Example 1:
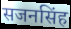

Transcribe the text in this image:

सजनसिंह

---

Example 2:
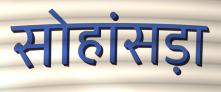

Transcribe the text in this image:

सोहांसड़ा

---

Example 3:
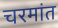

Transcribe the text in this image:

चरमांत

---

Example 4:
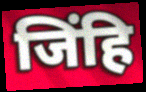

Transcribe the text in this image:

जिंहि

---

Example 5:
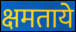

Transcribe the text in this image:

क्षमताये